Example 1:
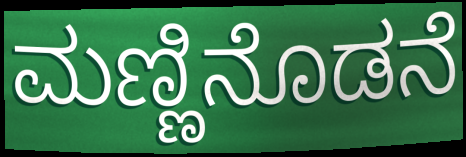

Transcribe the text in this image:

ಮಣ್ಣಿನೊಡನೆ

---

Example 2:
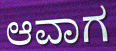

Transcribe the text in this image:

ಆವಾಗ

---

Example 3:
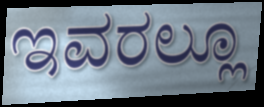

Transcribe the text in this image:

ಇವರಲ್ಲೂ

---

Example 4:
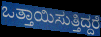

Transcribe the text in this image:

ಒತ್ತಾಯಿಸುತ್ತಿದ್ದರೆ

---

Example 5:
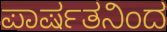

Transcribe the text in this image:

ಪಾರ್ಷತನಿಂದ